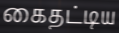
கைதட்டிய